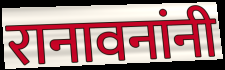
रानावनांनी